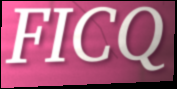
FICQ